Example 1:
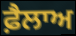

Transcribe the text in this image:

ਫ਼ੈਲਾਅ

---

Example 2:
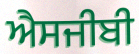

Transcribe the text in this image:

ਐਸਜੀਬੀ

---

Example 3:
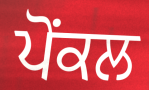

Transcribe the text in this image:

ਪੋਂਕਲ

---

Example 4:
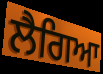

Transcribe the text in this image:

ਲੈਗਿਆ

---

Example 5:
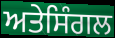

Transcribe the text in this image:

ਅਤੇਸਿੰਗਲ